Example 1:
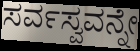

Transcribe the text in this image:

ಸರ್ವಸ್ವವನ್ನೇ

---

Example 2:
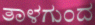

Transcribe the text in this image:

ತಾಳಗುಂದ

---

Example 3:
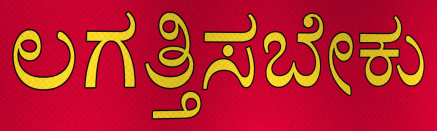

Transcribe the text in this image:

ಲಗತ್ತಿಸಬೇಕು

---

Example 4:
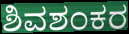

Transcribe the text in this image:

ಶಿವಶಂಕರ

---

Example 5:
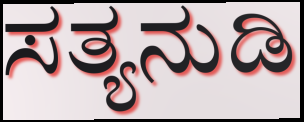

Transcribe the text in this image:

ಸತ್ಯನುಡಿ